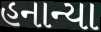
હનાન્યા